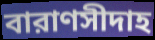
বারাণসীদাহ